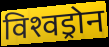
विश्वड्रोन